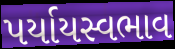
પર્યાયસ્વભાવ